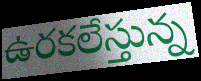
ఉరకలేస్తున్న